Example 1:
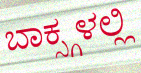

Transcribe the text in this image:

ಬಾಕ್ಸ್ಗಳಲ್ಲಿ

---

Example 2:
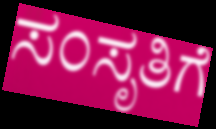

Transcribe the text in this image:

ಸಂಸೃತಿಗೆ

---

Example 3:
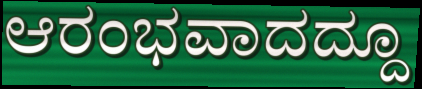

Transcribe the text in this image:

ಆರಂಭವಾದದ್ದೂ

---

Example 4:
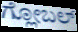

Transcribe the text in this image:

ಗ್ಲೋಬಲ್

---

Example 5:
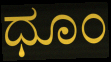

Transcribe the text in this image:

ಧೂಂ